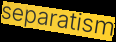
separatism